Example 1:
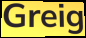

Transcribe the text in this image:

Greig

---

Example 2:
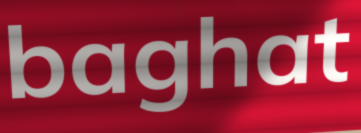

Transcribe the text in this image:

baghat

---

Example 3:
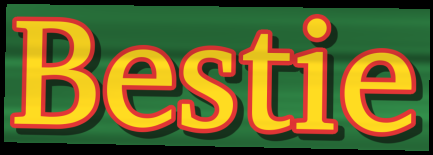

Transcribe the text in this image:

Bestie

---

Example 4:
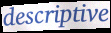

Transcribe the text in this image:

descriptive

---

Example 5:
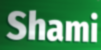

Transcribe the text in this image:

Shami